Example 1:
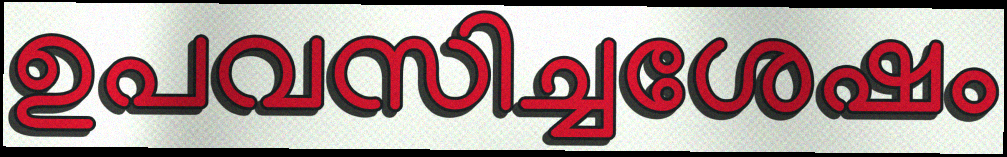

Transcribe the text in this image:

ഉപവസിച്ചശേഷം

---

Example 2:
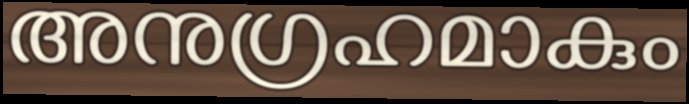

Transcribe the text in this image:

അനുഗ്രഹമാകും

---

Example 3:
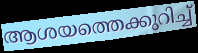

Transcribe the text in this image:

ആശയത്തെക്കുറിച്ച്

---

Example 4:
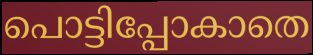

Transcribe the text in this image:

പൊട്ടിപ്പോകാതെ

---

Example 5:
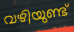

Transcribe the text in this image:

വഴിയുണ്ട്